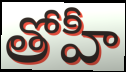
తోహీ